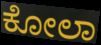
ಕೋಲಾ